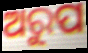
ଅରୁପ